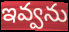
ఇవ్వను